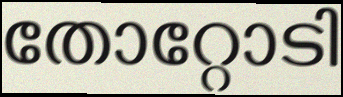
തോറ്റോടി